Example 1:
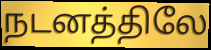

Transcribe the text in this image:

நடனத்திலே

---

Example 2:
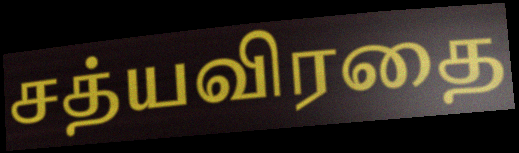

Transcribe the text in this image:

சத்யவிரதை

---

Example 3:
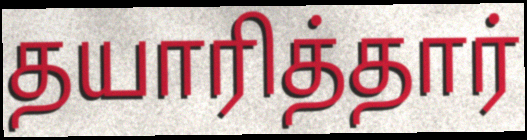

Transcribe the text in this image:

தயாரித்தார்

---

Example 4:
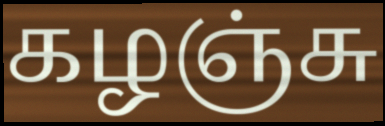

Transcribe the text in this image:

கழஞ்சு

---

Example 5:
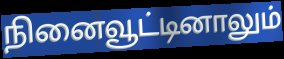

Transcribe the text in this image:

நினைவூட்டினாலும்